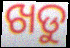
ଖଡୁ